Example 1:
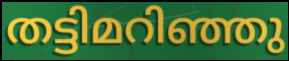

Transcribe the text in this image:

തട്ടിമറിഞ്ഞു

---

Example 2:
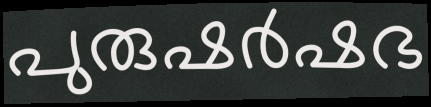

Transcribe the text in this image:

പുരുഷർഷഭ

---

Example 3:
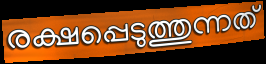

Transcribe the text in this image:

രക്ഷപ്പെടുത്തുന്നത്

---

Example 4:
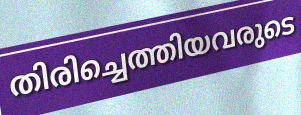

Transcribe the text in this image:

തിരിച്ചെത്തിയവരുടെ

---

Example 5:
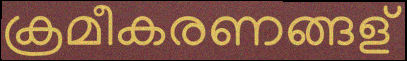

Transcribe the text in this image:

ക്രമീകരണങ്ങള്